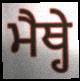
ਮੈਥ੍ਹੇ